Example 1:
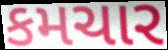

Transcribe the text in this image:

કમચાર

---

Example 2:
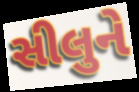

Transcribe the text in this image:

સીલુને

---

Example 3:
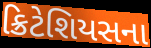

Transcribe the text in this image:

ક્રિટેશિયસના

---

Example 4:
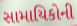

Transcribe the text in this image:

સામાયિકોની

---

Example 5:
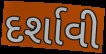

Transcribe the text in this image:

દર્શાવી